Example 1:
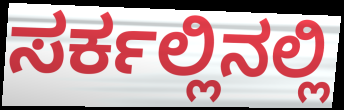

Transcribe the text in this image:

ಸರ್ಕಲ್ಲಿನಲ್ಲಿ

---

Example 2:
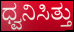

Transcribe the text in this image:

ಧ್ವನಿಸಿತ್ತು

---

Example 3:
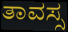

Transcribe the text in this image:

ತಾವಸ್ಸ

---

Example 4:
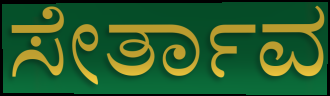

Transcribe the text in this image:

ಸೇರ್ತಾವ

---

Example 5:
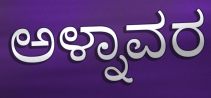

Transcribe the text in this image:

ಅಳ್ನಾವರ